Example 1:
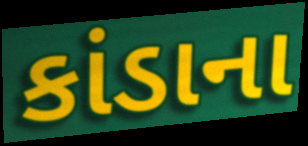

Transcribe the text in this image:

કાંડાના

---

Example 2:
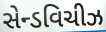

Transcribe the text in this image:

સેન્ડવિચીઝ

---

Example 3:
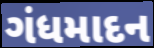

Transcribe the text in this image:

ગંધમાદન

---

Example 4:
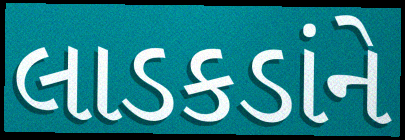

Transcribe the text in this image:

લાડકડાંને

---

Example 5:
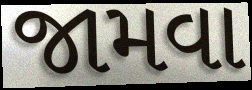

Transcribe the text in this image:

જામવા